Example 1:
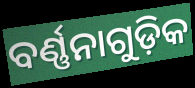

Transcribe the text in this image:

ବର୍ଣ୍ଣନାଗୁଡ଼ିକ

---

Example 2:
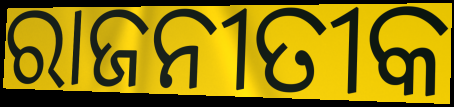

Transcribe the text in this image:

ରାଜନୀତୀକ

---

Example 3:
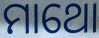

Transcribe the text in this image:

ମାଥୋ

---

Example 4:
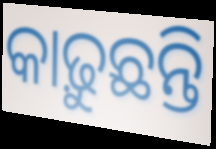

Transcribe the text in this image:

କାଢ଼ୁଛନ୍ତି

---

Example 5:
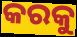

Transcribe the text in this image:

କରକୁ